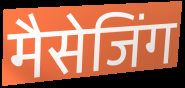
मैसेजिंग